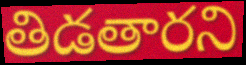
తిడతారని